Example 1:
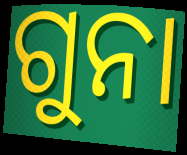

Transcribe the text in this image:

ଗୁନା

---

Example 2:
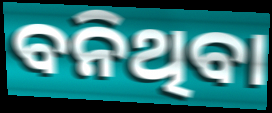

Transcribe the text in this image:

ବନିଥିବା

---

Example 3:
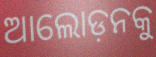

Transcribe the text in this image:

ଆଲୋଡ଼ନକୁ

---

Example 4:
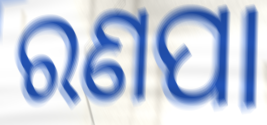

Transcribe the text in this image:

ରଣପା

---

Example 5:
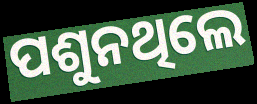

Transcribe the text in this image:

ପଶୁନଥିଲେ